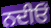
ਨਦੀਓਂ